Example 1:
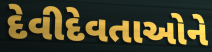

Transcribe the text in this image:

દેવીદેવતાઓને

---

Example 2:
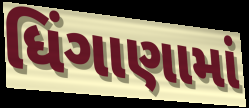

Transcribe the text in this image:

ધિંગાણામાં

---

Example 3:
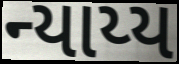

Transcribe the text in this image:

ન્યાય્ય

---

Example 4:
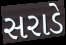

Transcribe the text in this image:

સરાડે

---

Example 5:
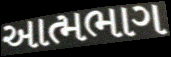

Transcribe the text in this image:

આત્મભાગ